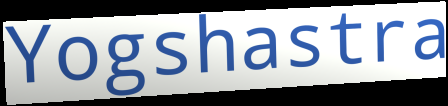
Yogshastra